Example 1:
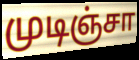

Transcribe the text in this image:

முடிஞ்சா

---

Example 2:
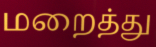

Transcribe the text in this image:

மறைத்து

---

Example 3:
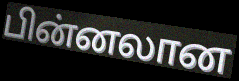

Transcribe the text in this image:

பின்னலான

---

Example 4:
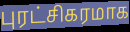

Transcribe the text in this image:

புரட்சிகரமாக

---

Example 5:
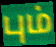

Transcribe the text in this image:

பும்